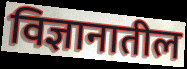
विज्ञानातील